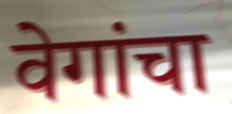
वेगांचा